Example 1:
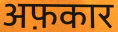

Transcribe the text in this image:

अफ़कार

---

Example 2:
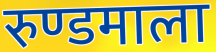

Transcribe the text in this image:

रुण्डमाला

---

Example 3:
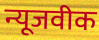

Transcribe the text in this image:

न्यूजवीक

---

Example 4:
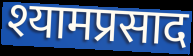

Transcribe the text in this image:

श्यामप्रसाद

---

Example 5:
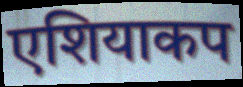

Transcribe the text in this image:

एशियाकप